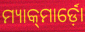
ମ୍ୟାକ୍‍ମାର୍ଡ଼ୋ